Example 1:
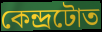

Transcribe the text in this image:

কেন্দ্ৰটোত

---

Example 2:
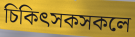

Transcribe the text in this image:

চিকিৎসকসকলে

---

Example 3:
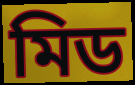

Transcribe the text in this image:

মিড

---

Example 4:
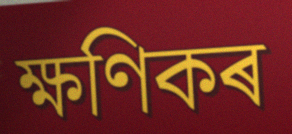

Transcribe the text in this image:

ক্ষণিকৰ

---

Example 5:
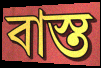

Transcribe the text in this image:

বাস্ত